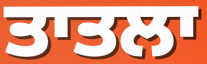
ਤਾਤਲਾ